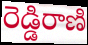
రెడ్డిరాణి